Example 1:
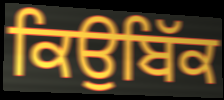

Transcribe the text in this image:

ਕਿਉਬਿੱਕ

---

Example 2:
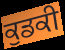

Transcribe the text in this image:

ਕੁਡਕੀ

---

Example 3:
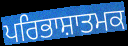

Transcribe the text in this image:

ਪਰਿਭਾਸ਼ਾਤਮਕ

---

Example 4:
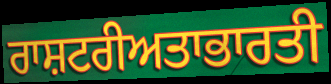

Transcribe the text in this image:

ਰਾਸ਼ਟਰੀਅਤਾਭਾਰਤੀ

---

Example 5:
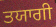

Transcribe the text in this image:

ਤਯਾਗੀ